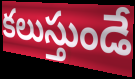
కలుస్తుండే